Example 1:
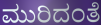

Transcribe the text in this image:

ಮುರಿದಂತೆ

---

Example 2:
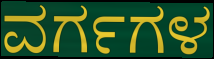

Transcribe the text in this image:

ವರ್ಗಗಳ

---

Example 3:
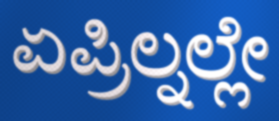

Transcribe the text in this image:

ಏಪ್ರಿಲ್ನಲ್ಲೇ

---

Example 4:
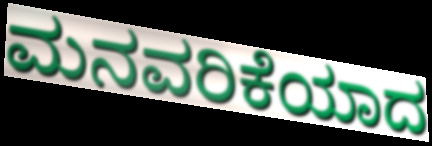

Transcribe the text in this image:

ಮನವರಿಕೆಯಾದ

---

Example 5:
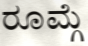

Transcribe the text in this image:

ರೂಮ್ಗೆ